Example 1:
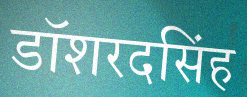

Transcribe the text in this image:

डॉशरदसिंह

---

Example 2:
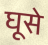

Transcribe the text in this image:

घूसे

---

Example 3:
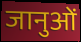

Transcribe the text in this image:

जानुओं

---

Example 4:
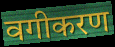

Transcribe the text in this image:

वगीकरण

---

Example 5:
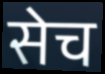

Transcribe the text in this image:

सेच